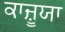
ਕਾਜ਼ੂਯਾ